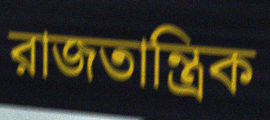
রাজতান্ত্রিক